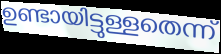
ഉണ്ടായിട്ടുള്ളതെന്ന്